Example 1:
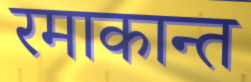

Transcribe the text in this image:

रमाकान्त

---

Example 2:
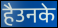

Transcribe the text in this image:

हैउनके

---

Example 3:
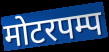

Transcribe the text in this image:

मोटरपम्प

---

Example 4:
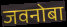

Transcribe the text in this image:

जवनोबा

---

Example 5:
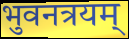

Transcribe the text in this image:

भुवनत्रयम्